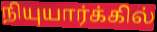
நியுயார்க்கில்